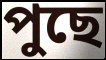
পুছে